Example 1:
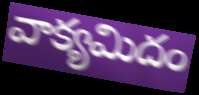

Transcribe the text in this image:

వాక్యమిదం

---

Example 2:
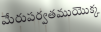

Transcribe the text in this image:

మేరుపర్వతముయొక్క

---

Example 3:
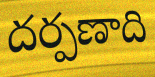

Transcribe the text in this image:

దర్పణాది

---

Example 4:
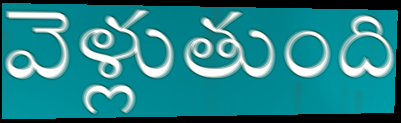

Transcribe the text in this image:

వెళ్లుతుంది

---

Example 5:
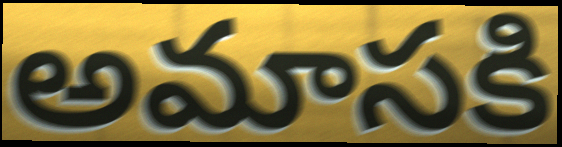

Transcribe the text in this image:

అమాసకి